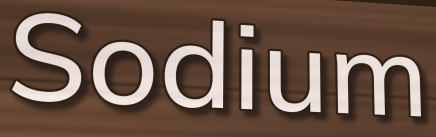
Sodium